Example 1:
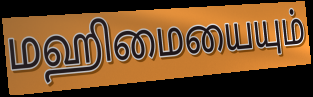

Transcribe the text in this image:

மஹிமையையும்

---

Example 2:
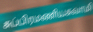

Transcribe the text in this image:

சுப்பிரமணியசுவாமி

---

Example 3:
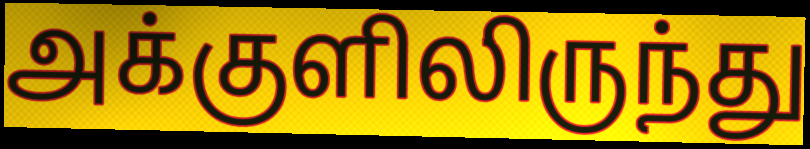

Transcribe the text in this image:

அக்குளிலிருந்து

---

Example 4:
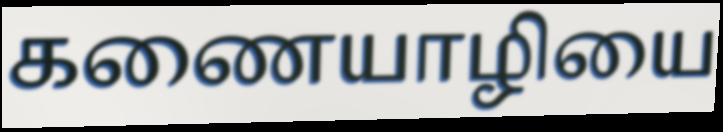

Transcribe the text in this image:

கணையாழியை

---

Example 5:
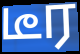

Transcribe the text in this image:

டீர